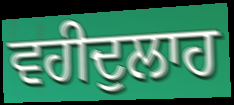
ਵਹੀਦੁਲਾਹ